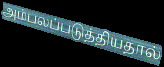
அம்பலப்படுத்தியதால்